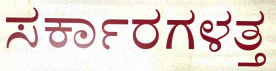
ಸರ್ಕಾರಗಳತ್ತ